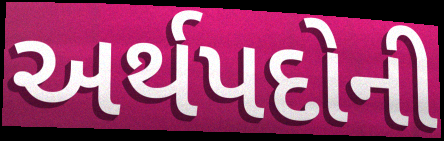
અર્થપદોની